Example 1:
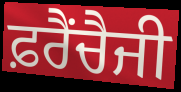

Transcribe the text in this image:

ਫ਼ਰੈਂਚੈਜੀ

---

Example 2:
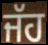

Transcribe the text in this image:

ਜੱਹ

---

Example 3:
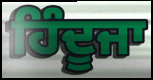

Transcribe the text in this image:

ਹਿੰਦੂਜਾ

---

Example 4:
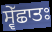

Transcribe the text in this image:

ਸ੍ਵੇੱਛਾਤਃ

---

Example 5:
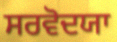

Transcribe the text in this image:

ਸਰਵੋਦਯਾ